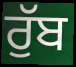
ਰੁੱਬ